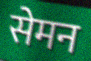
सेमन